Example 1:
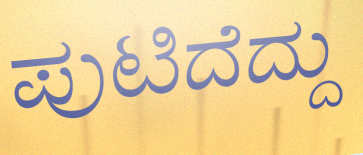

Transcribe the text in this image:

ಪುಟಿದೆದ್ದು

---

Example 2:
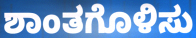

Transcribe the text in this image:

ಶಾಂತಗೊಳಿಸು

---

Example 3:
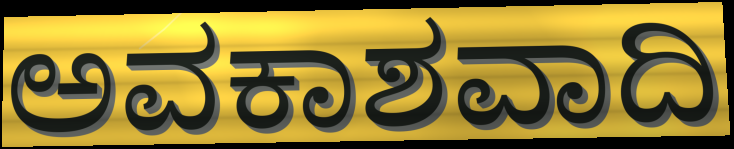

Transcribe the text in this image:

ಅವಕಾಶವಾದಿ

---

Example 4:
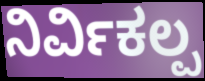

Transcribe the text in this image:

ನಿರ್ವಿಕಲ್ಪ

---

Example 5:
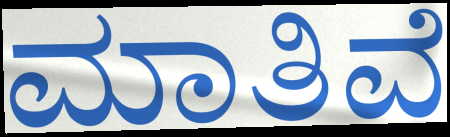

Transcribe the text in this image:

ಮಾತಿವೆ